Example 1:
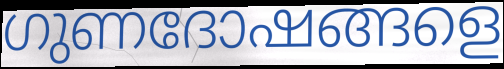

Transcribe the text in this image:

ഗുണദോഷങ്ങളെ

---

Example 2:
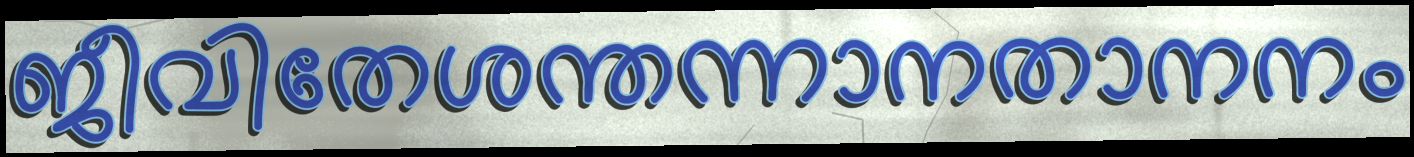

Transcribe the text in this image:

ജീവിതേശന്തന്നാനതാനനം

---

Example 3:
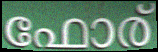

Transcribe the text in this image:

ഫോര്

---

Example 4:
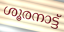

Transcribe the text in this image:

ശൂരനാട്ട്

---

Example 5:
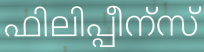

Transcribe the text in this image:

ഫിലിപ്പീന്സ്